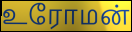
உரோமன்